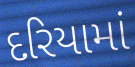
દરિયામાં